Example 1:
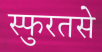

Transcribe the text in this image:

स्फुरतसे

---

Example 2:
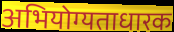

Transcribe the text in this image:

अभियोग्यताधारक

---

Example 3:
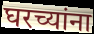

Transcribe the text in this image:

घरच्‍यांना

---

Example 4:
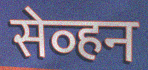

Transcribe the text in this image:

सेव्हन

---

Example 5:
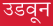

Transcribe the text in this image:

उडवून